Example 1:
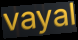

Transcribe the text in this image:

vayal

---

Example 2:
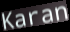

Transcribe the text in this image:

Karan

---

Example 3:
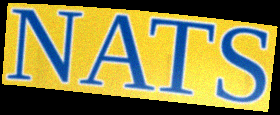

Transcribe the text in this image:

NATS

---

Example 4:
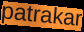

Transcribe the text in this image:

patrakar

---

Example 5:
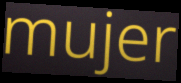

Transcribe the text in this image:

mujer